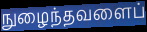
நுழைந்தவளைப்